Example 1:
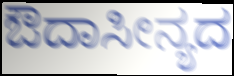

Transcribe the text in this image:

ಔದಾಸೀನ್ಯದ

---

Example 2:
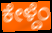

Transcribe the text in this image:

ಕೇಳ್ದೆಂ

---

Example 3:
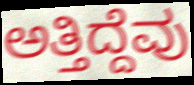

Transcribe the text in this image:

ಅತ್ತಿದ್ದೆವು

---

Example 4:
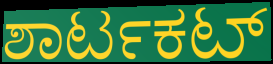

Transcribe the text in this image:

ಶಾರ್ಟಕಟ್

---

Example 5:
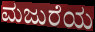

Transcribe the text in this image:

ಮಜುರೆಯ